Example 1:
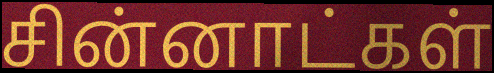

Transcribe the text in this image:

சின்னாட்கள்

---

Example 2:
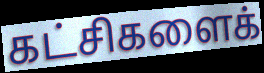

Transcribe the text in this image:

கட்சிகளைக்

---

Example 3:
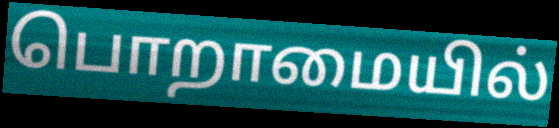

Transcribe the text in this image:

பொறாமையில்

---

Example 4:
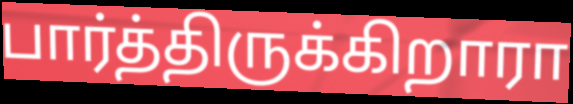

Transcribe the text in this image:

பார்த்திருக்கிறாரா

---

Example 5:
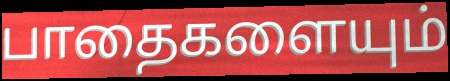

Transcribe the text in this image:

பாதைகளையும்